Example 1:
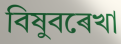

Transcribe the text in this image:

বিষুবৰেখা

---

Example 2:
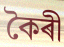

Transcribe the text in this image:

কৈৰী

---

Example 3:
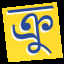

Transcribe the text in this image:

ক্ৰু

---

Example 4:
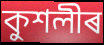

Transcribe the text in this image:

কুশলীৰ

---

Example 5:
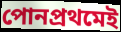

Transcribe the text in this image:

পোনপ্ৰথমেই